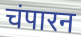
चंपारन